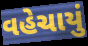
વહેચાયું